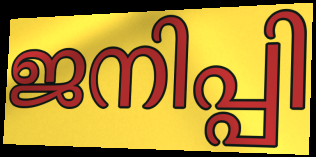
ജനിപ്പി